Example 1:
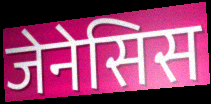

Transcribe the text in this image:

जेनेसिस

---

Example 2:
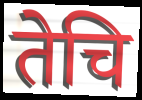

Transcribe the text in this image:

तेचि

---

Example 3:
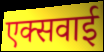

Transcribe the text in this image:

एक्सवाई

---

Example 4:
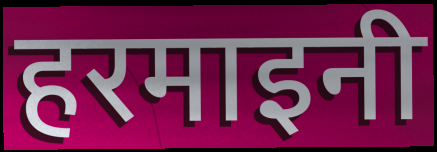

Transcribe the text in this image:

हरमाइनी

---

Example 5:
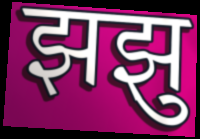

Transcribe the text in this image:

झझु